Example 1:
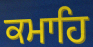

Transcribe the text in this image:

ਕਮਾਹਿ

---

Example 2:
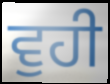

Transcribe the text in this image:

ਵੁਹੀ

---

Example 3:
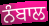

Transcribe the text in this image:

ਨੰਬਾਲ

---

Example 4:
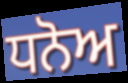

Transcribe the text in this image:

ਧਨੋਅ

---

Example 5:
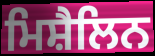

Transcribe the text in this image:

ਮਿਸ਼ੈਲਿਨ